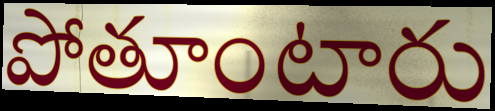
పోతూంటారు